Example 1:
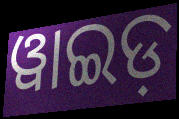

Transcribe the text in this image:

ୱାଇଡ଼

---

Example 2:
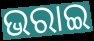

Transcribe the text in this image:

ଭରାଇ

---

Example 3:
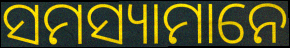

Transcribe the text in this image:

ସମସ୍ୟାମାନେ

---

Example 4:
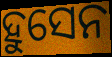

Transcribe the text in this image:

ହୁସେନ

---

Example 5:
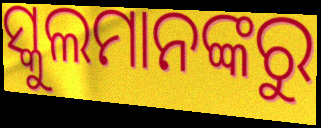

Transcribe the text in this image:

ସ୍କୁଲମାନଙ୍କରୁ